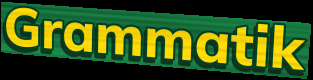
Grammatik